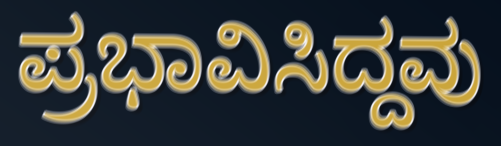
ಪ್ರಭಾವಿಸಿದ್ದವು